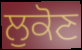
ਲੁਕੋਣ